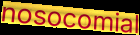
nosocomial